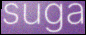
suga